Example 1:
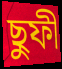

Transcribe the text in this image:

ছুফী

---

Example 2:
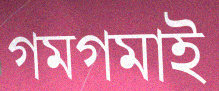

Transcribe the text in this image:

গমগমাই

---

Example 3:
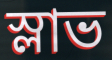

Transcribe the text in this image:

স্লাভ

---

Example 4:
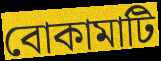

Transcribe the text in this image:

বোকামাটি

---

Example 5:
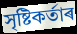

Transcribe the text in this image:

সৃষ্টিকৰ্তাৰ